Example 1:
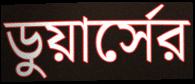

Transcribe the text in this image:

ডুয়ার্সের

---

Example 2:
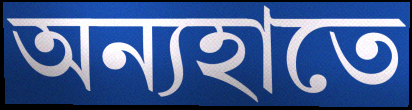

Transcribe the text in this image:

অন্যহাতে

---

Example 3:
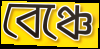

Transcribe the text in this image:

বেঞ্চে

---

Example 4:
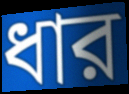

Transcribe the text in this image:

ধার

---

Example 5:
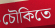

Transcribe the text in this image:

চৌকিতে